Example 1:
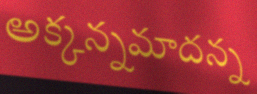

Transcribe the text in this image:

అక్కన్నమాదన్న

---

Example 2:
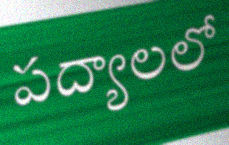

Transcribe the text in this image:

పద్యాలలో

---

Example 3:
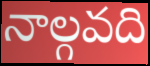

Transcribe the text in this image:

నాల్గవది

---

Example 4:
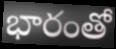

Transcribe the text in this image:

భారంతో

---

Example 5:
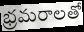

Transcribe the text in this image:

భ్రమరాలతో